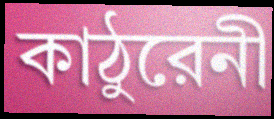
কাঠুরেনী